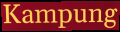
Kampung